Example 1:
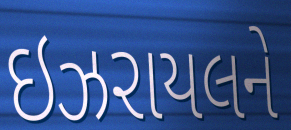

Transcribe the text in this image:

ઇઝરાયલને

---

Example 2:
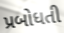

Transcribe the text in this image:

પ્રબોધતી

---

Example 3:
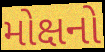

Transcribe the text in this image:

મોક્ષનો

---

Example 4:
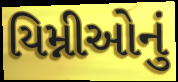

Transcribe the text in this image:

યિમ્નીઓનું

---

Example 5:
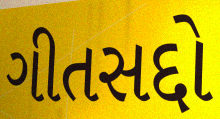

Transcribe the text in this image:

ગીતસદ્દો